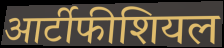
आर्टीफीशियल